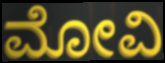
ಮೋವಿ